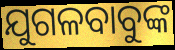
ଯୁଗଳବାବୁଙ୍କ